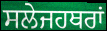
ਸਲੇਜਹਥਰਾਂ